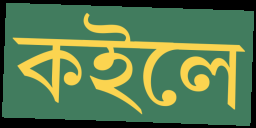
কইলে